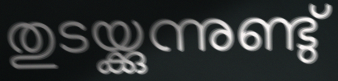
തുടയ്ക്കുന്നുണ്ടു്